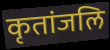
कृतांजलि